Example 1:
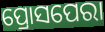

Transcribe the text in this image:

ପ୍ରୋସପେରା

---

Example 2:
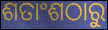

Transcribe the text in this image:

ଶତାଂଶଠାରୁ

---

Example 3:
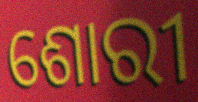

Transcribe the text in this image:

ଶୋରୀ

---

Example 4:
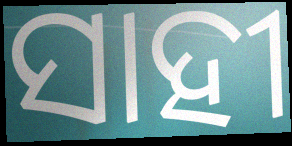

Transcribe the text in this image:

ସାହୀ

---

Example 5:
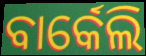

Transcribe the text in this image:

ବାର୍କେଲି